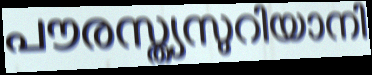
പൗരസ്ത്യസുറിയാനി